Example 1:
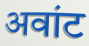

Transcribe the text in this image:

अवांट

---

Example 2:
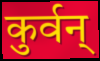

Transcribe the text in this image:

कुर्वन्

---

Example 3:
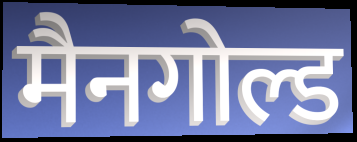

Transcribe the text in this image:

मैनगोल्ड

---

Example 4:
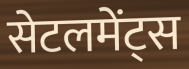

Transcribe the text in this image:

सेटलमेंट्स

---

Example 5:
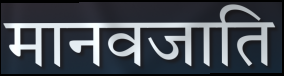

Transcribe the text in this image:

मानवजाति